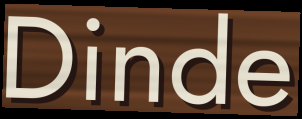
Dinde